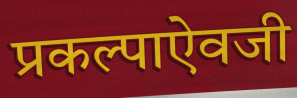
प्रकल्पाऐवजी